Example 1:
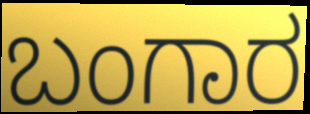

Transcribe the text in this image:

ಬಂಗಾರ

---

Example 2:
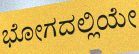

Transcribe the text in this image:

ಭೋಗದಲ್ಲಿಯೇ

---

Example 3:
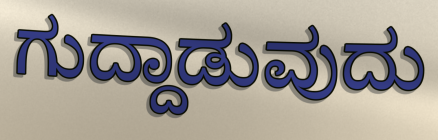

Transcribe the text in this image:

ಗುದ್ದಾಡುವುದು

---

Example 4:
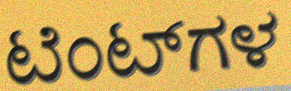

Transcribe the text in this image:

ಟೆಂಟ್‌ಗಳ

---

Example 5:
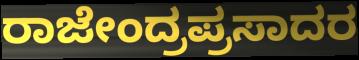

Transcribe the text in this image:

ರಾಜೇಂದ್ರಪ್ರಸಾದರ